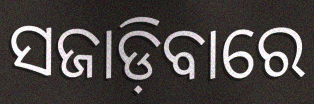
ସଜାଡ଼ିବାରେ